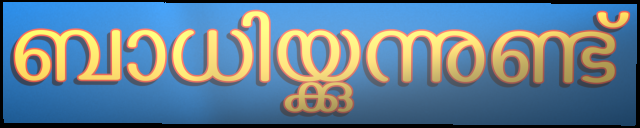
ബാധിയ്ക്കുന്നുണ്ട്